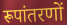
रूपांतरणों